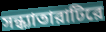
সন্ধ্যাতারাটিরে